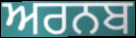
ਅਰਨਬ